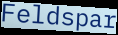
Feldspar